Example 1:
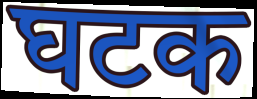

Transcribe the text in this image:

घटक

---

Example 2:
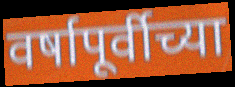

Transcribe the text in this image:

वर्षापूर्वीच्या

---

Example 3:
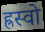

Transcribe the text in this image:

ह्रस्वो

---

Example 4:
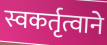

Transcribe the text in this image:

स्वकर्तृत्वाने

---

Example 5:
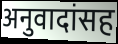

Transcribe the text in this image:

अनुवादांसह